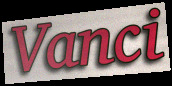
Vanci